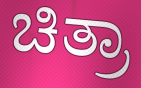
ಚಿತ್ರಾ